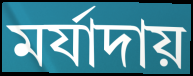
মর্যাদায়